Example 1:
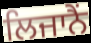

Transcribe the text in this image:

ਲਿਜਾਨੈਂ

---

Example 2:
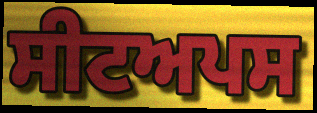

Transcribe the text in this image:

ਸੀਟਅਪਸ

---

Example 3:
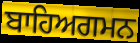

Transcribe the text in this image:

ਬਾਹਿਅਗਮਨ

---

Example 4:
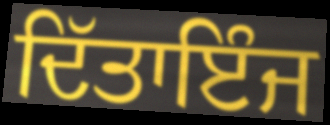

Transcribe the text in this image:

ਦਿੱਤਾਇੰਜ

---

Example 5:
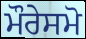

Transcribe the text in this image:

ਮੌਰੇਸਮੋ